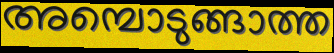
അമ്പൊടുങ്ങാത്ത